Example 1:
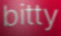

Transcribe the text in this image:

bitty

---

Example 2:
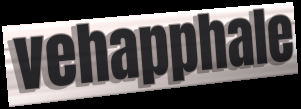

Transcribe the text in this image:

vehapphale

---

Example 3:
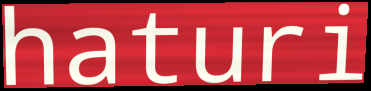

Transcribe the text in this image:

haturi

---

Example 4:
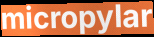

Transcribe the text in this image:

micropylar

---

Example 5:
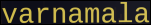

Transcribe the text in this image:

varnamala